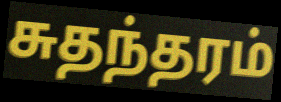
சுதந்தரம்